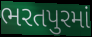
ભરતપુરમાં